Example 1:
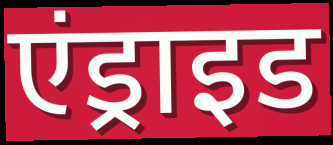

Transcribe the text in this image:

एंड्राइड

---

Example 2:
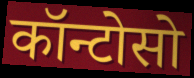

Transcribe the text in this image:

कॉन्टोसो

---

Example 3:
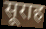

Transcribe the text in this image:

सूराह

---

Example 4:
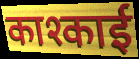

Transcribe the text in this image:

काश्काई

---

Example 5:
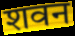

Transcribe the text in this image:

शवन